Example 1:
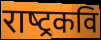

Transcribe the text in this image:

राष्ट्रकवि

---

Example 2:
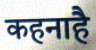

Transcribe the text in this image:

कहनाहै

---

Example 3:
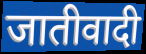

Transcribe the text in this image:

जातीवादी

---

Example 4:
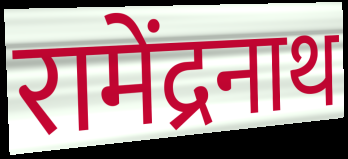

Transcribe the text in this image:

रामेंद्रनाथ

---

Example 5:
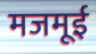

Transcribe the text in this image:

मजमूई